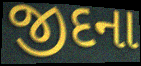
જીદના